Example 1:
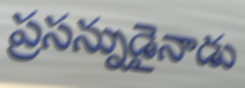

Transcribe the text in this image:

ప్రసన్నుడైనాడు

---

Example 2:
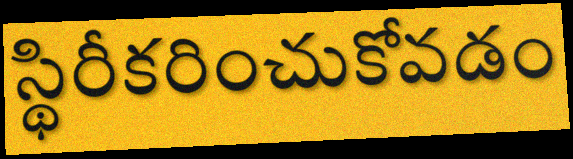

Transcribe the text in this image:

స్థిరీకరించుకోవడం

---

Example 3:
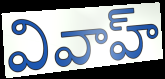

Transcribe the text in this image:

వివాహ్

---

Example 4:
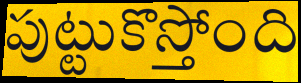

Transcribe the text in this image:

పుట్టుకొస్తోంది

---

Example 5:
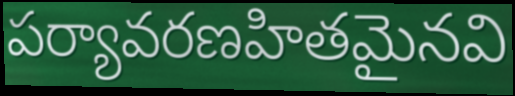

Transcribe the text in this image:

పర్యావరణహితమైనవి